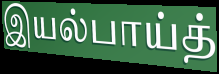
இயல்பாய்த்